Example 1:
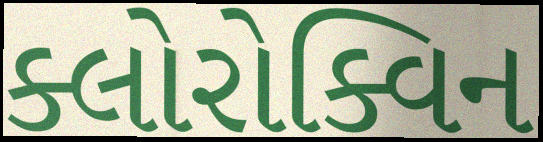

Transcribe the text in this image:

ક્લોરોક્વિન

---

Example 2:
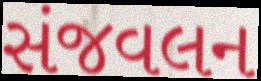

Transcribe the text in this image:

સંજવલન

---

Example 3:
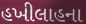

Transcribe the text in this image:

હખીલાહના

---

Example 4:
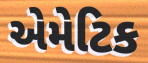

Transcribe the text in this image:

એમેટિક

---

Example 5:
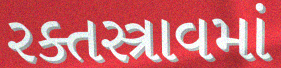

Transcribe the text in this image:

રક્તસ્ત્રાવમાં